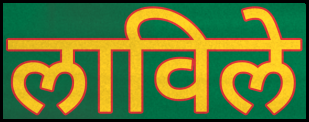
लाविले